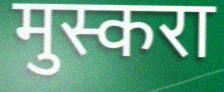
मुस्करा